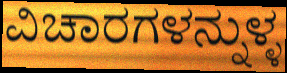
ವಿಚಾರಗಳನ್ನುಳ್ಳ